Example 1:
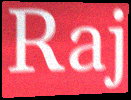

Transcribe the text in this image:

Raj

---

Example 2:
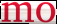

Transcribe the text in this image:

mo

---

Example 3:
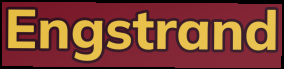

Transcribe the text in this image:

Engstrand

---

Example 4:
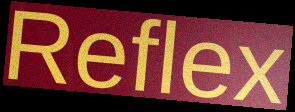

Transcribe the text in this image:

Reflex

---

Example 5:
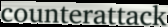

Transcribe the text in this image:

counterattack